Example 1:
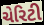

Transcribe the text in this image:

ચેરિટી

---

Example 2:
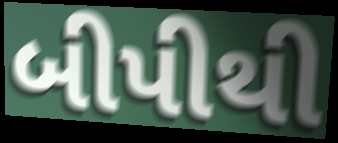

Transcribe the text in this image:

બીપીથી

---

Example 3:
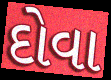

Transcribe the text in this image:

દોવા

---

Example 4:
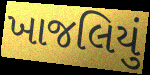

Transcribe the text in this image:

ખાજલિયું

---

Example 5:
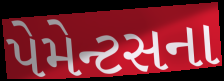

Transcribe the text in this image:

પેમેન્ટસના